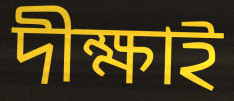
দীক্ষাই